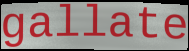
gallate